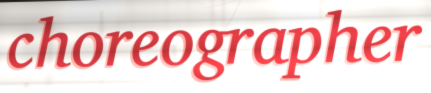
choreographer